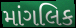
માંગલિક